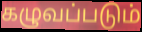
கழுவப்படும்